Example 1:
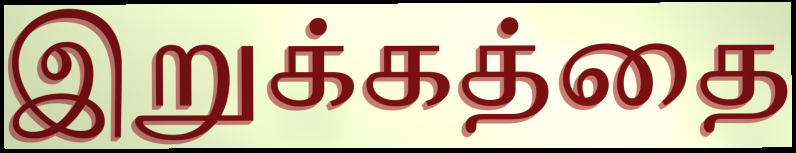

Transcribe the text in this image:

இறுக்கத்தை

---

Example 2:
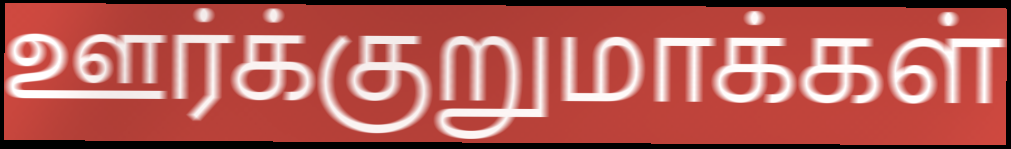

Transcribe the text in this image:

ஊர்க்குறுமாக்கள்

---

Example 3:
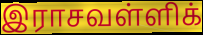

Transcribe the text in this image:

இராசவள்ளிக்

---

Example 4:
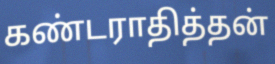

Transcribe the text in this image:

கண்டராதித்தன்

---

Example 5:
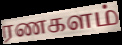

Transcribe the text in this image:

ரணகளம்